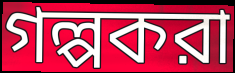
গল্পকরা